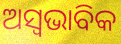
ଅସ୍ୱଭାବିକ